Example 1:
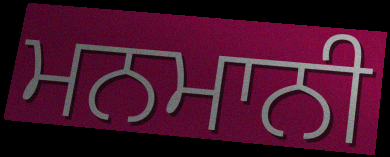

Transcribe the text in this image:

ਮਨਮਾਨੀ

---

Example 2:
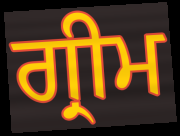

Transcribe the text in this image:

ਗ੍ਰੀਮ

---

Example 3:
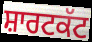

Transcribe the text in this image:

ਸ਼ਾਰਟਕੱਟ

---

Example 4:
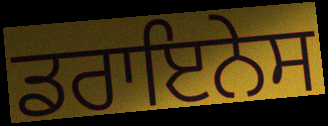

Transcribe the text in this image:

ਡਰਾਇਨੇਸ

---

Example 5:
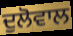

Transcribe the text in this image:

ਦੁਲੋਵਾਲ